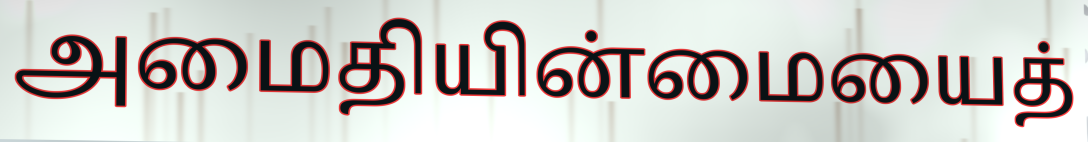
அமைதியின்மையைத்